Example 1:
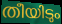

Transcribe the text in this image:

തീയിടും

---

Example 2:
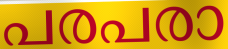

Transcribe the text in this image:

പരപരാ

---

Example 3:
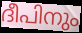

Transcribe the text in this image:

ദീപിനും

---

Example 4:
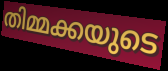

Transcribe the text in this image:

തിമ്മക്കയുടെ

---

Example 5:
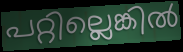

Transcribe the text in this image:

പറ്റില്ലെങ്കിൽ